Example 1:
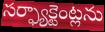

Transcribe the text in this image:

సర్ఫ్యాక్టెంట్లను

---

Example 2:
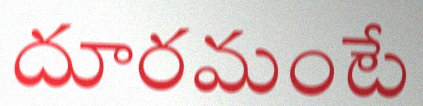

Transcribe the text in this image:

దూరమంటే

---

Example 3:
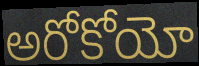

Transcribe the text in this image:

అరోకోయో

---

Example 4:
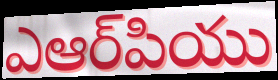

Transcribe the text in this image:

ఎఆర్‌పియు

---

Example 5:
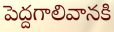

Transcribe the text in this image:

పెద్దగాలివానకి